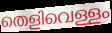
തെളിവെള്ളം